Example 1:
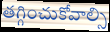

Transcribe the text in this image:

తగ్గించుకోవాల్సి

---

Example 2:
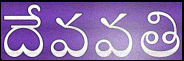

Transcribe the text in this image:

దేవవతి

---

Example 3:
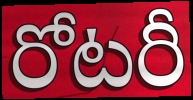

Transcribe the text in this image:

రోటరీ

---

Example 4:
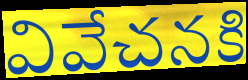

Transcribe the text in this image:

వివేచనకి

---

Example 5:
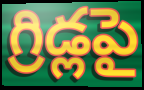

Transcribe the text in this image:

గ్రిడ్లపై